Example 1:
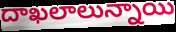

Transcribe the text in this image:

దాఖలాలున్నాయి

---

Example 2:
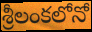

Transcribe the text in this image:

శ్రీలంకలోనో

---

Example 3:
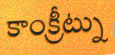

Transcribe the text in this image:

కాంక్రీట్ను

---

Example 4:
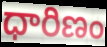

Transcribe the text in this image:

ధారిణం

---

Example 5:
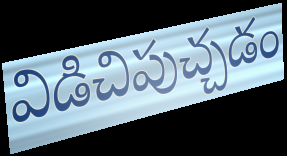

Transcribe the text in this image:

విడిచిపుచ్చడం